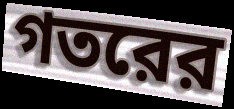
গতরের